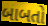
બાબતો